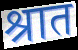
श्रात